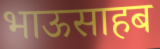
भाऊसाहब